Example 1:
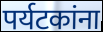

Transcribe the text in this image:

पर्यटकांना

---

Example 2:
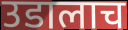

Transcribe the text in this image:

उडालाच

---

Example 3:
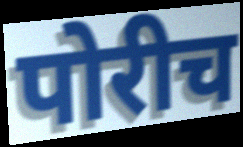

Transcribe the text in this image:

पोरीच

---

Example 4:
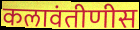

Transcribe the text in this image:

कलावंतीणीस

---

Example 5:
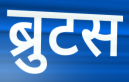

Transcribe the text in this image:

ब्रुटस